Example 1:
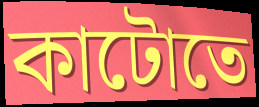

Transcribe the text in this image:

কাটোতে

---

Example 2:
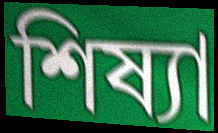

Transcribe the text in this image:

শিষ্যা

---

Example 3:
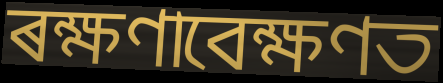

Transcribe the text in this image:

ৰক্ষণাবেক্ষণত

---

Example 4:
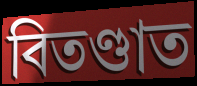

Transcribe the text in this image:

বিতণ্ডাত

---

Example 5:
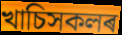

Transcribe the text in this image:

খাচিসকলৰ